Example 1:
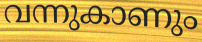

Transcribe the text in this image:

വന്നുകാണും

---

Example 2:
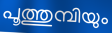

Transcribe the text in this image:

പൂത്തുമ്പിയും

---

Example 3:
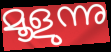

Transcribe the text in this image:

മൂളുന്നു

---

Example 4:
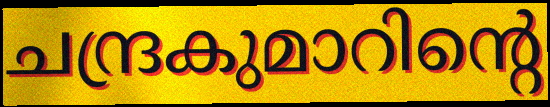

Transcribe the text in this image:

ചന്ദ്രകുമാറിന്റെ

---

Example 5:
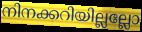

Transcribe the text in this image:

നിനക്കറിയില്ലല്ലോ